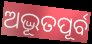
ଅଦ୍ଭୂତପୂର୍ବ